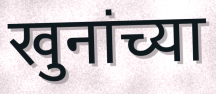
खुनांच्या